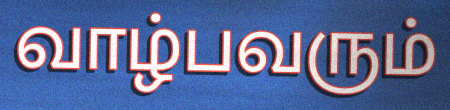
வாழ்பவரும்